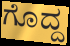
ಗೊದ್ದ